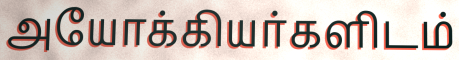
அயோக்கியர்களிடம்